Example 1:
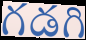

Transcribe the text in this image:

గడగి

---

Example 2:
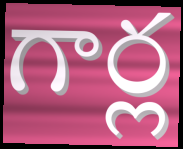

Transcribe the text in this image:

గార్ల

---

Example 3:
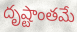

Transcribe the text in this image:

దృష్టాంతమే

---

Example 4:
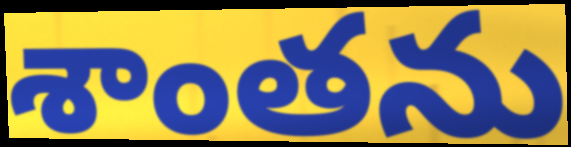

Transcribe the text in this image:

శాంతను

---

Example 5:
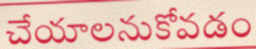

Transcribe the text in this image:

చేయాలనుకోవడం